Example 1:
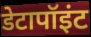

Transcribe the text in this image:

डेटापॉइंट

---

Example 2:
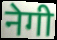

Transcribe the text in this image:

नेगी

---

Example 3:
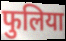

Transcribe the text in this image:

फुलिया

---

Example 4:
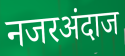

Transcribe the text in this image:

नजरअंदाज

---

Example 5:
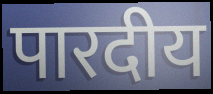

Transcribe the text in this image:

पारदीय